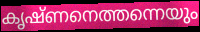
കൃഷ്ണനെത്തന്നെയും